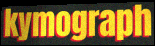
kymograph